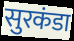
सुरकंडा